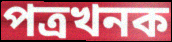
পত্ৰখনক